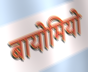
बायोमियो